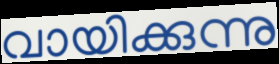
വായിക്കുന്നു